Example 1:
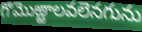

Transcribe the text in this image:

గొమొఱ్ఱాలవలెనగును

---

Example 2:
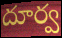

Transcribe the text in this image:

దూర్వ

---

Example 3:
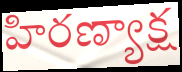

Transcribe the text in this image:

హిరణ్యాక్ష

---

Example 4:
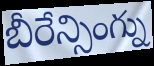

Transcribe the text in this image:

బీరేన్సింగ్ను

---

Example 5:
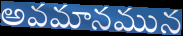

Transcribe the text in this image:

అవమానమున